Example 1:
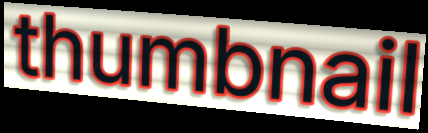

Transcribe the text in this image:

thumbnail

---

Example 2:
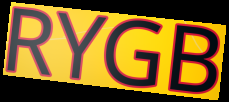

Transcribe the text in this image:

RYGB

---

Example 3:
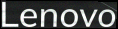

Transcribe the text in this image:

Lenovo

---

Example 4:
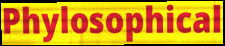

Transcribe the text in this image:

Phylosophical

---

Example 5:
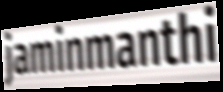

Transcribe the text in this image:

jaminmanthi